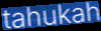
tahukah